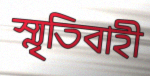
স্মৃতিবাহী